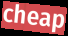
cheap